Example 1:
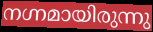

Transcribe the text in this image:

നഗ്നമായിരുന്നു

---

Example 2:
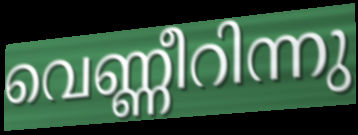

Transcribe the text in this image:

വെണ്ണീറിന്നു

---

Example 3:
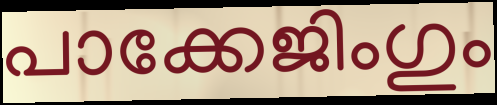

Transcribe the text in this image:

പാക്കേജിംഗും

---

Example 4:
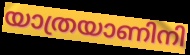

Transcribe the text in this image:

യാത്രയാണിനി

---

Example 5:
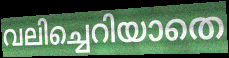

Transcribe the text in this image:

വലിച്ചെറിയാതെ